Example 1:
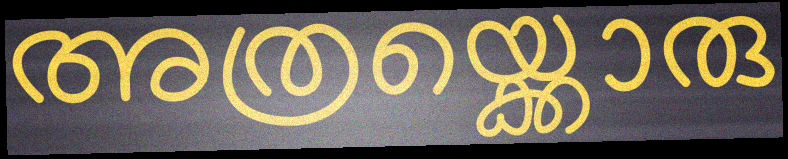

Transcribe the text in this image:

അത്രയ്ക്കൊരു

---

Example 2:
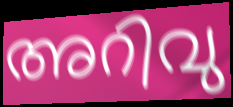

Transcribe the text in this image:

അറിവു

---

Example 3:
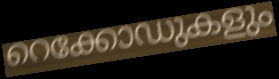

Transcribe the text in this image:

റെക്കോഡുകളും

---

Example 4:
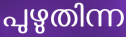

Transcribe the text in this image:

പുഴുതിന്ന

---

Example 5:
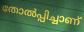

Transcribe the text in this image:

തോൽപ്പിച്ചാണ്